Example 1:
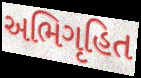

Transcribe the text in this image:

અભિગૃહિત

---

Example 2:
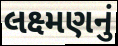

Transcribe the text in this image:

લક્ષ્મણનું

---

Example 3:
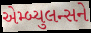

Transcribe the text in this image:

એમ્બ્યુલન્સને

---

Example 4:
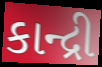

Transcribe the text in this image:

કાન્દ્રી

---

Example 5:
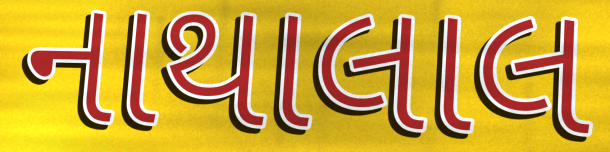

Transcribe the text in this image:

નાથાલાલ